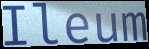
Ileum